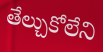
తేల్చుకోలేని